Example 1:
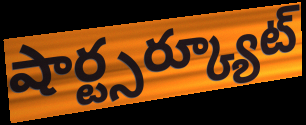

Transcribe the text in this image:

షార్ట్సర్క్యూట్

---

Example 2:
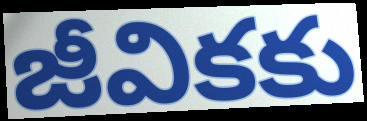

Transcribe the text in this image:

జీవికకు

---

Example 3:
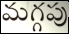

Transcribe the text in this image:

మగ్గపు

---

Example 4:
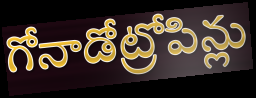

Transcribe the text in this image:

గోనాడోట్రోపిన్లు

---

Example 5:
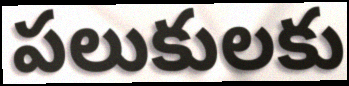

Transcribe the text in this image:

పలుకులకు